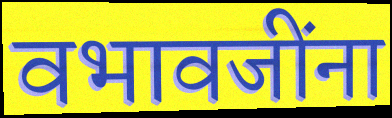
वभावजींना